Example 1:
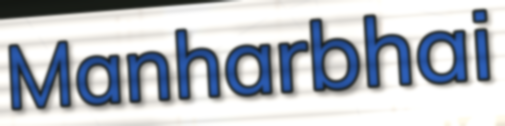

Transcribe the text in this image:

Manharbhai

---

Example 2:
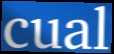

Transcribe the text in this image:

cual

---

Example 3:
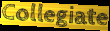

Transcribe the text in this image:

Collegiate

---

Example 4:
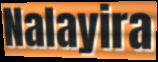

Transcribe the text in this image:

Nalayira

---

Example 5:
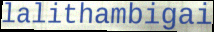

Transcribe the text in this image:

lalithambigai